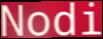
Nodi